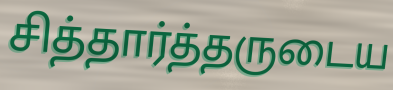
சித்தார்த்தருடைய